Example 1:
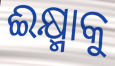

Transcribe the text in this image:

ଈକ୍ଷ୍ମାକୁ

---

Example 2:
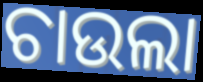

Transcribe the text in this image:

ଚାଉଲା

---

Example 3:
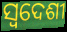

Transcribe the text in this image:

ସ୍ଵଦେଶୀ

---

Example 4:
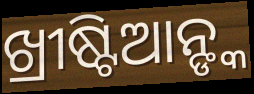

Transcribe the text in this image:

ଖ୍ରୀଷ୍ଟିଆନ୍ଙ୍କ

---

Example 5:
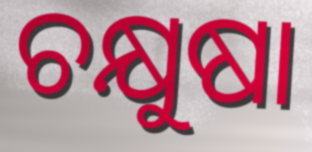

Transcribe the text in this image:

ଚକ୍ଷୁଷା